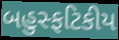
બહુસ્ફટિકીય